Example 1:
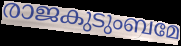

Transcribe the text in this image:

രാജകുടുംബമേ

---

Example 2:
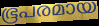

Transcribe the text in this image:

ഭൂപരമായ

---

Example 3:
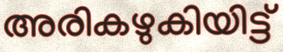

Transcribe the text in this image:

അരികഴുകിയിട്ട്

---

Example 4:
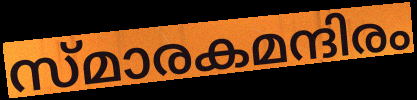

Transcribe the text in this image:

സ്മാരകമന്ദിരം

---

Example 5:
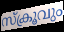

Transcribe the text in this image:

സ്ക്രൂവും